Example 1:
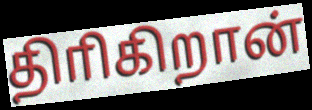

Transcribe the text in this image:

திரிகிறான்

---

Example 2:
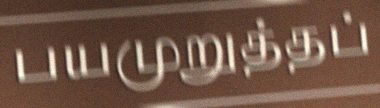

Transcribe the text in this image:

பயமுறுத்தப்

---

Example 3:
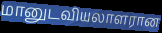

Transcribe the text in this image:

மானுடவியலாளரான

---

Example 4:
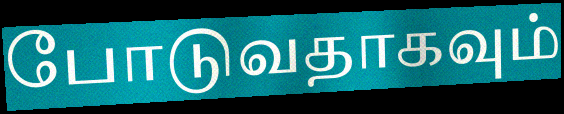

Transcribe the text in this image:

போடுவதாகவும்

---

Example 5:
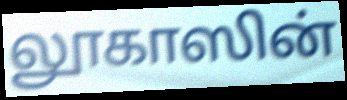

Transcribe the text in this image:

லூகாஸின்